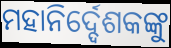
ମହାନିର୍ଦ୍ଦେଶକଙ୍କୁ